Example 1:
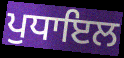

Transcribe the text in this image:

ਪੁਧਾਇਲ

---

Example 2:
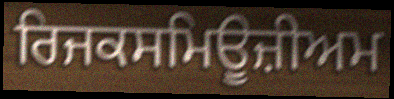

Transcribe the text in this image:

ਰਿਜਕਸਮਿਊਜ਼ੀਅਮ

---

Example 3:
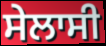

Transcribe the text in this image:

ਸੇਲਾਸੀ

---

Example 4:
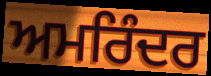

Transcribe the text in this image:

ਅਮਰਿੰਦਰ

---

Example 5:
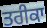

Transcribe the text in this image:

ਤਰੀਕਾ